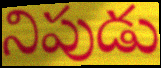
నిపుడు